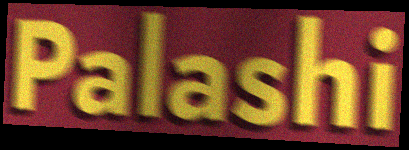
Palashi